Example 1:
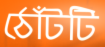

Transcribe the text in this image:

ঠোঁটটি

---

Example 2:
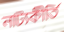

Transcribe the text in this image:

নাট্যকীর্তি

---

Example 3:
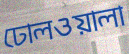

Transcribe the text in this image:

ঢোলওয়ালা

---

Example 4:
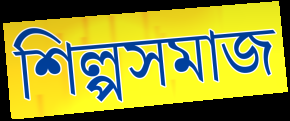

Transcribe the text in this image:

শিল্পসমাজ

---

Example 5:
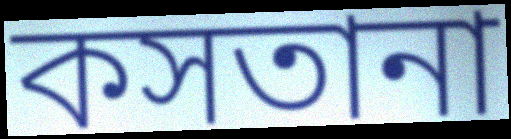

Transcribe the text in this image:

কসতানা